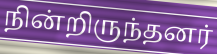
நின்றிருந்தனர்